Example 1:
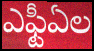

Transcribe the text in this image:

ఎఫ్టీఏల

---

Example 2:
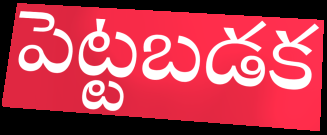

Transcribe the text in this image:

పెట్టబడక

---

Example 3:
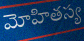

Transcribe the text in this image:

మోహితస్య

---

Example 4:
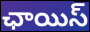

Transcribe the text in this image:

ఛాయిస్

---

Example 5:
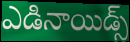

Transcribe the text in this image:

ఎడినాయిడ్స్